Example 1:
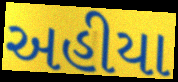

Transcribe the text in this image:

અહીયા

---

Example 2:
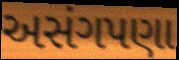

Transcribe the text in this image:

અસંગપણા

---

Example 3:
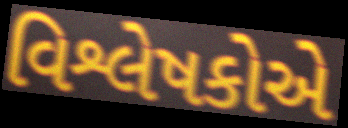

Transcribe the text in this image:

વિશ્લેષકોએ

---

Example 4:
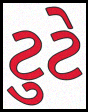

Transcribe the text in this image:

ટુટે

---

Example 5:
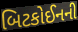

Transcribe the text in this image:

બિટકોઈનની